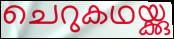
ചെറുകഥയ്ക്കു